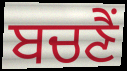
ਬਚਣੈਂ